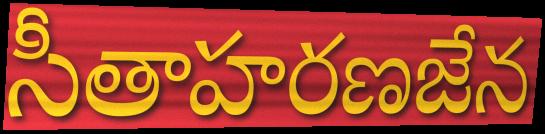
సీతాహరణజేన